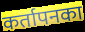
कर्तापनका